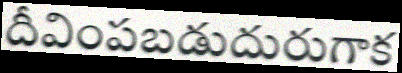
దీవింపబడుదురుగాక